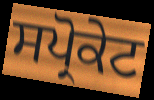
ਸਪ੍ਰੋਕੇਟ